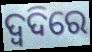
ଦ୍ଵଦିରେ